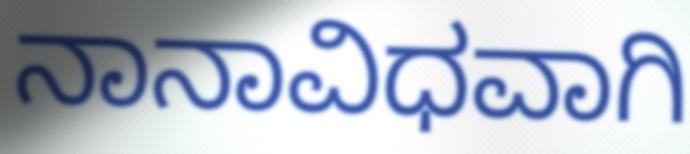
ನಾನಾವಿಧವಾಗಿ